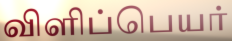
விளிப்பெயர்